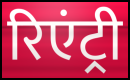
रिएंट्री